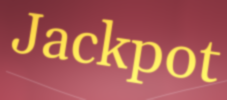
Jackpot